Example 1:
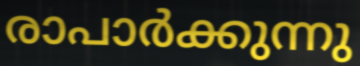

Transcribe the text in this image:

രാപാർക്കുന്നു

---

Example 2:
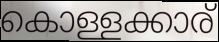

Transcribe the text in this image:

കൊള്ളക്കാര്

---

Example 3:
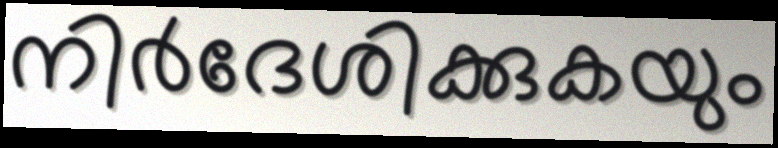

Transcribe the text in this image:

നിർദേശിക്കുകയും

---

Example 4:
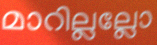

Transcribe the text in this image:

മാറില്ലല്ലോ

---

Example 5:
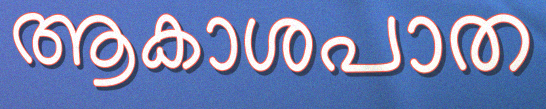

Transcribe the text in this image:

ആകാശപാത